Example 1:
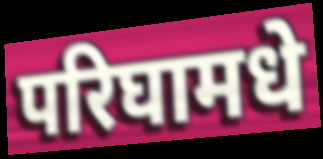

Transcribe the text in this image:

परिघामधे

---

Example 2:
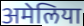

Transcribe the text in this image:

अमेलिया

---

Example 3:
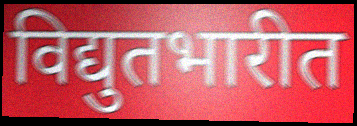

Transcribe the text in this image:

विद्युतभारीत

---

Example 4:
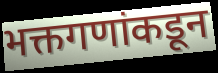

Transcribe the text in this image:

भक्तगणांकडून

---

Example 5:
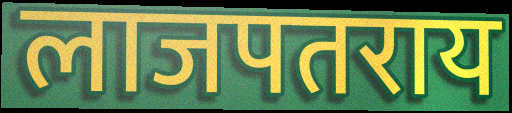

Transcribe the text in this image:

लाजपतराय